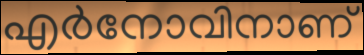
എർനോവിനാണ്